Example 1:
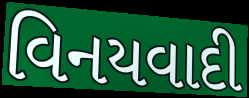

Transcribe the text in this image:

વિનયવાદી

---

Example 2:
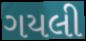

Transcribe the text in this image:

ગયલી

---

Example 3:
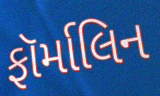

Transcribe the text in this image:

ફૉર્માલિન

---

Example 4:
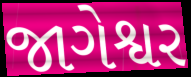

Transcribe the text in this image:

જાગેશ્વર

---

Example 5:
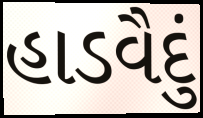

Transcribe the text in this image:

હાડવૈદું